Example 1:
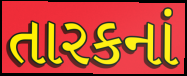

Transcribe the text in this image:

તારકનાં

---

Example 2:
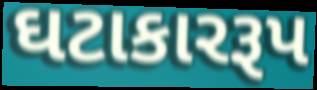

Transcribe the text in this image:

ઘટાકારરૂપ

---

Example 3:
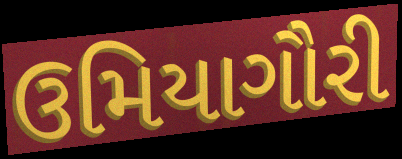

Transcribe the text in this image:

ઉમિયાગૌરી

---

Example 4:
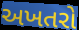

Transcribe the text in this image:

અખતરો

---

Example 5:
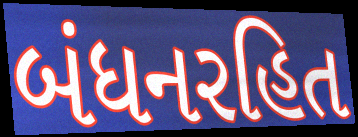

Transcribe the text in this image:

બંધનરહિત